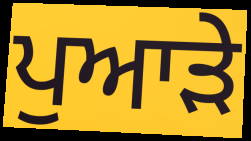
ਪੁਆੜੇ